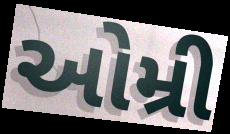
ઓમ્રી